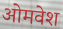
ओमवेश